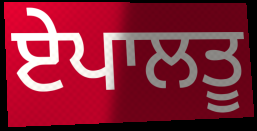
ਏਪਾਲਤੂ